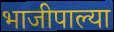
भाजीपाल्या